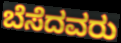
ಬೆಸೆದವರು